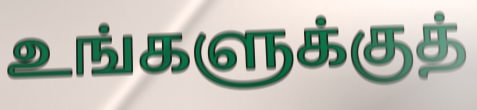
உங்களுக்குத்